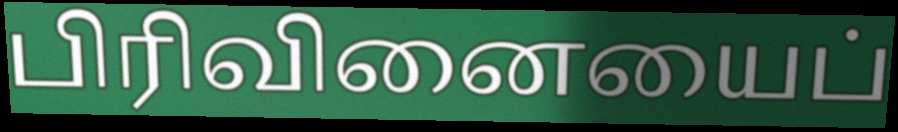
பிரிவினையைப்